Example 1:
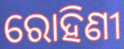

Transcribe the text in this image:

ରୋହିଣୀ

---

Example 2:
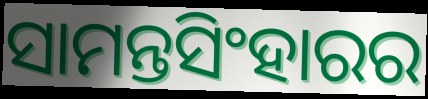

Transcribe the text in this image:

ସାମନ୍ତସିଂହାରର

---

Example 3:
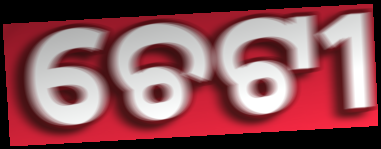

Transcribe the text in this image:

ଚେଟୀ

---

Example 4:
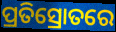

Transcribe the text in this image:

ପ୍ରତିସ୍ରୋତରେ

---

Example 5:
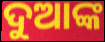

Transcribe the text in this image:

ଦୁଆଙ୍କ